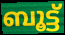
ബൂട്ട്